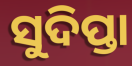
ସୁଦିପ୍ତା